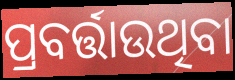
ପ୍ରବର୍ତ୍ତାଉଥିବା